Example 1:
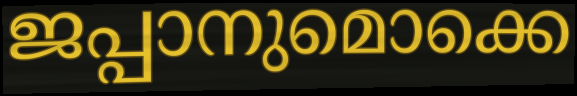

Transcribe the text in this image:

ജപ്പാനുമൊക്കെ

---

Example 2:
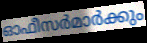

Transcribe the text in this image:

ഓഫീസർമാർക്കും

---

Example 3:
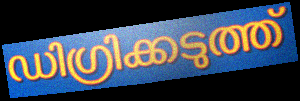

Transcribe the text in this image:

ഡിഗ്രിക്കടുത്ത്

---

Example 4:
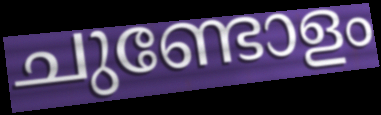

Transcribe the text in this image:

ചുണ്ടോളം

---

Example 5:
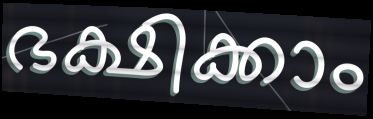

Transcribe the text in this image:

ഭക്ഷിക്കാം